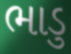
ભાડુ